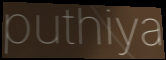
puthiya